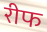
रीफ